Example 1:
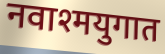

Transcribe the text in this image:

नवाश्मयुगात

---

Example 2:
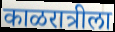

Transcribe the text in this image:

काळरात्रीला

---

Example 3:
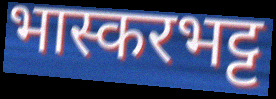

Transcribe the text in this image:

भास्करभट्ट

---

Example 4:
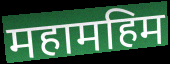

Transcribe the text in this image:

महामहिम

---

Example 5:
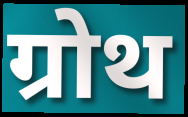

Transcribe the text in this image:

ग्रोथ